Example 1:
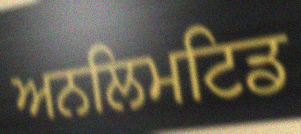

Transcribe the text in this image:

ਅਨਲਿਮਟਿਡ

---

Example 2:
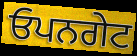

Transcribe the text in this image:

ਓਪਨਗੇਟ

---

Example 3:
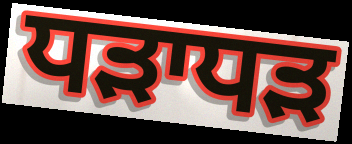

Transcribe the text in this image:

ਧੜਾਧੜ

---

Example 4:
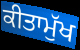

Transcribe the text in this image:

ਕੀਤਾਮੁੱਖ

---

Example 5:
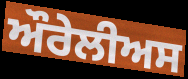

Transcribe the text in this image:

ਔਰੇਲੀਅਸ